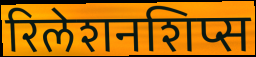
रिलेशनशिप्स